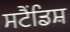
ਸਟੈਂਡਿਸ਼